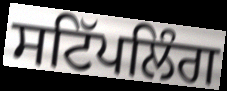
ਸਟਿੱਪਲਿੰਗ